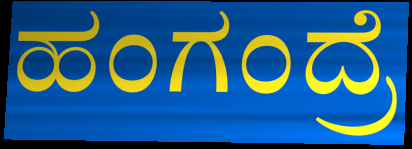
ಹಂಗಂದ್ರೆ